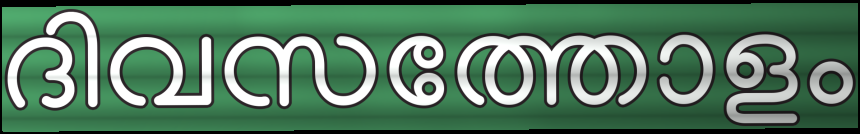
ദിവസത്തോളം